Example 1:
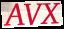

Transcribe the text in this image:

AVX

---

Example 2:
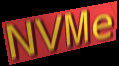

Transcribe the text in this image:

NVMe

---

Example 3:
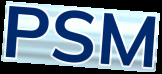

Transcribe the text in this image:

PSM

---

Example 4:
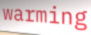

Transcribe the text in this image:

warming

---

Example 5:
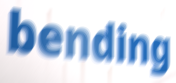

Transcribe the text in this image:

bending